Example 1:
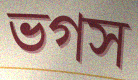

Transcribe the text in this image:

ভগস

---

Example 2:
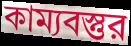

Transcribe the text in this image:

কাম্যবস্তুর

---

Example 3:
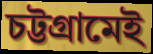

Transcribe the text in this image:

চট্টগ্রামেই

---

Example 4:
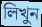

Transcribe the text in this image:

লিখুন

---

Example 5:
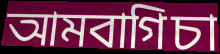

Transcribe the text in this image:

আমবাগিচা